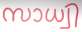
സാധ്വി